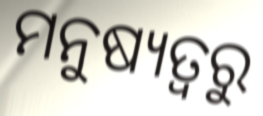
ମନୁଷ୍ୟତ୍ୱରୁ